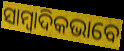
ସାମ୍ୱାଦିକଭାବେ